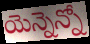
యెన్నెన్నో